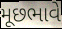
મૂછભાવે